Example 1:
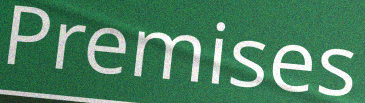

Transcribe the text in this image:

Premises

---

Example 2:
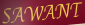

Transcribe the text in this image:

SAWANT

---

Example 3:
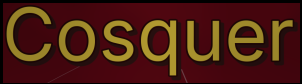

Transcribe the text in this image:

Cosquer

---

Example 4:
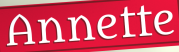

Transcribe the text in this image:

Annette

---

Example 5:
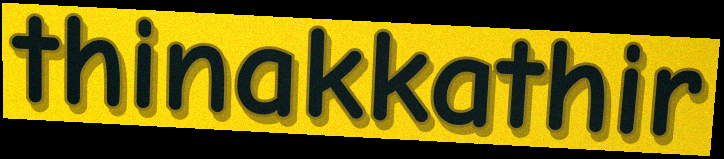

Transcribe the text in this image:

thinakkathir